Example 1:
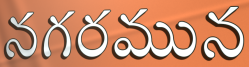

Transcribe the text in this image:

నగరమున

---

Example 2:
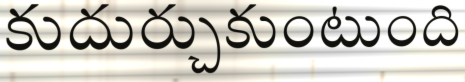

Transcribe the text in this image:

కుదుర్చుకుంటుంది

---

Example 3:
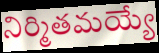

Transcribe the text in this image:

నిర్మితమయ్యే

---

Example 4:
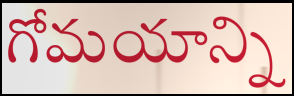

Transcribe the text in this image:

గోమయాన్ని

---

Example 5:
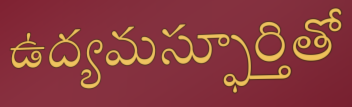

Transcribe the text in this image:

ఉద్యమస్ఫూర్తితో